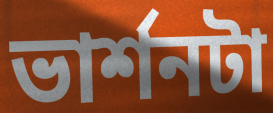
ভার্শনটা